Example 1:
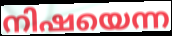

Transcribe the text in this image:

നിഷയെന്ന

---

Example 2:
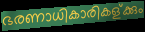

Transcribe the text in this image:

ഭരണാധികാരികള്ക്കും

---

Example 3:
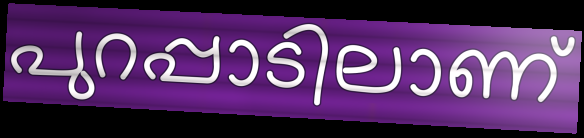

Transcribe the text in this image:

പുറപ്പാടിലാണ്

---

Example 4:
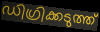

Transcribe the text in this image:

ഡിഗ്രിക്കടുത്ത്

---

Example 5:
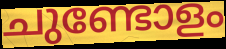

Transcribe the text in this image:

ചുണ്ടോളം